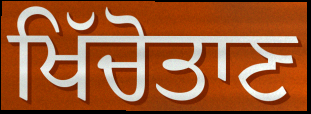
ਖਿੱਚੋਤਾਣ